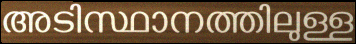
അടിസ്ഥാനത്തിലുള്ള